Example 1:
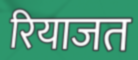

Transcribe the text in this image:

रियाजत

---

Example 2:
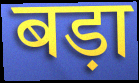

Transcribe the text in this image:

बड़ा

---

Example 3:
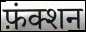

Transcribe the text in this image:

फ़ंक्शन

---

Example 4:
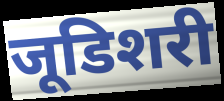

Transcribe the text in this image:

जूडिशरी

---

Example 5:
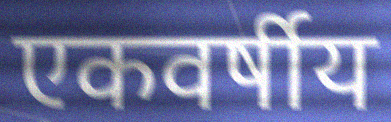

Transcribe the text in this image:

एकवर्षीय